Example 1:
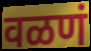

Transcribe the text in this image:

वळणं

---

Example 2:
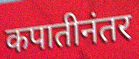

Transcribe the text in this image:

कपातीनंतर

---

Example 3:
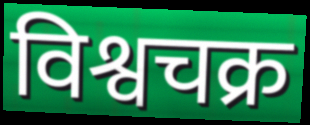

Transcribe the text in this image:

विश्वचक्र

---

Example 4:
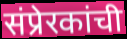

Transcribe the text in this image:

संप्रेरकांची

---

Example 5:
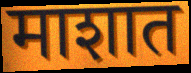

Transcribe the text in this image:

माशात